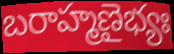
బరాహ్మణైభ్యః